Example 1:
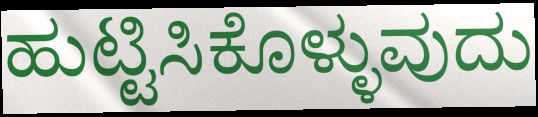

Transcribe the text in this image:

ಹುಟ್ಟಿಸಿಕೊಳ್ಳುವುದು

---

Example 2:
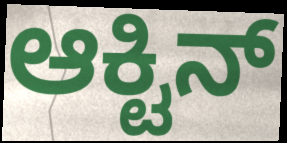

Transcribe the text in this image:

ಆಕ್ಟಿನ್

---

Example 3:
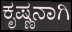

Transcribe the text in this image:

ಕೃಷ್ಣನಾಗಿ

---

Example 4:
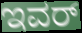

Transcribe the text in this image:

ಇವರ್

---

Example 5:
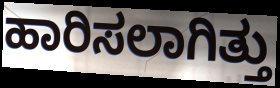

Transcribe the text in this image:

ಹಾರಿಸಲಾಗಿತ್ತು